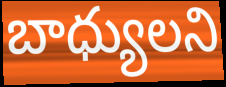
బాధ్యులని